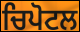
ਚਿਪੋਟਲ